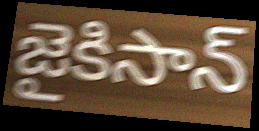
జైకిసాన్